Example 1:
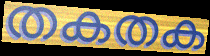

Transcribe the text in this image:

തകതക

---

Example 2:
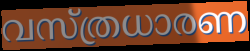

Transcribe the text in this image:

വസ്ത്രധാരണ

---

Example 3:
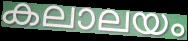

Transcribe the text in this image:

കലാലയം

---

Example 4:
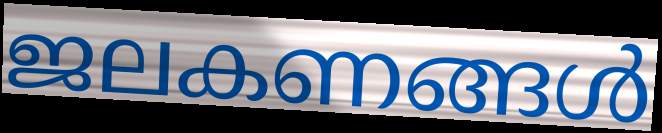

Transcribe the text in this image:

ജലകണങ്ങൾ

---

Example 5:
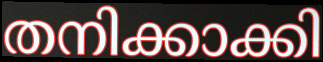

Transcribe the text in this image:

തനിക്കാക്കി